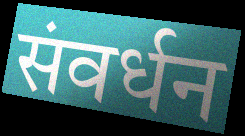
संवर्धन